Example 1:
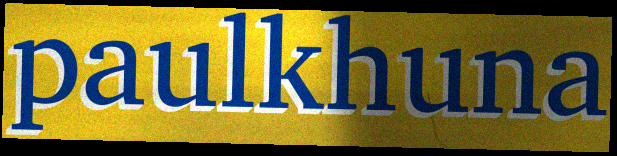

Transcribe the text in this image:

paulkhuna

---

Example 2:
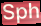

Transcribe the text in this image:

Sph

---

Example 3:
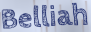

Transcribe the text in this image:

Belliah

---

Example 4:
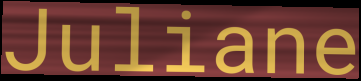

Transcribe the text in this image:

Juliane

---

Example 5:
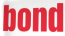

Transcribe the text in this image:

bond